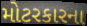
મોટરકારના